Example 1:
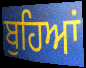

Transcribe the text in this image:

ਬੁਹਿਆਂ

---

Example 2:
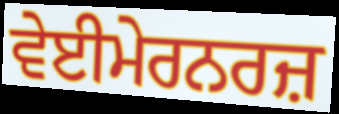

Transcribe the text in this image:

ਵੇਈਮੇਰਨਰਜ਼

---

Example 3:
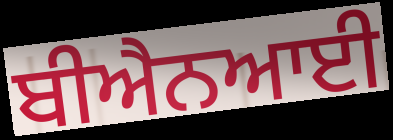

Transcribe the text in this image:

ਬੀਐਨਆਈ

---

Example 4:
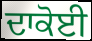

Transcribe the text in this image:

ਦਾਕੋਈ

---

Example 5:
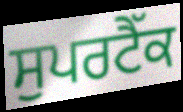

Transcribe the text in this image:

ਸੁਪਰਟੈੱਕ